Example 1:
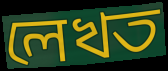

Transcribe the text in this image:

লেখত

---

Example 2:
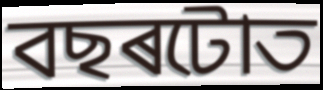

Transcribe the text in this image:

বছৰটোত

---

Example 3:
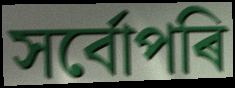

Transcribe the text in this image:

সৰ্বোপৰি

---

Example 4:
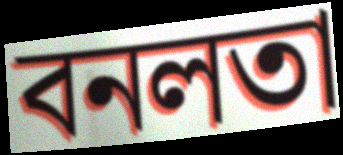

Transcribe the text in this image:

বনলতা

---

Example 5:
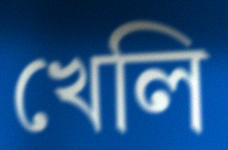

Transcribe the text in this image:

খেলি